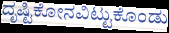
ದೃಷ್ಟಿಕೋನವಿಟ್ಟುಕೊಂಡು